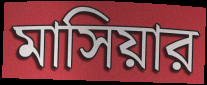
মাসিয়ার